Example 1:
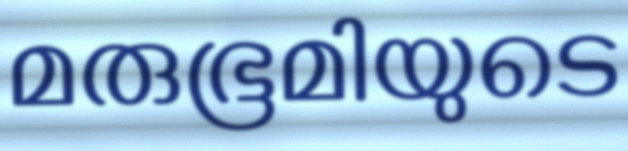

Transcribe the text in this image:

മരുഭൂമിയുടെ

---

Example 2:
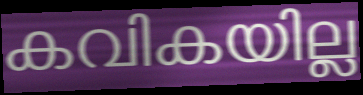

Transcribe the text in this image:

കവികയില്ല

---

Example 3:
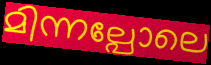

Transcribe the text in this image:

മിന്നല്പോലെ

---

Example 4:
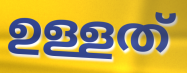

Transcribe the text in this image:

ഉള്ളത്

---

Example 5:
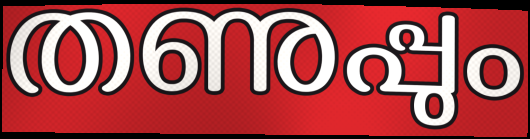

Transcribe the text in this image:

തണുപ്പും